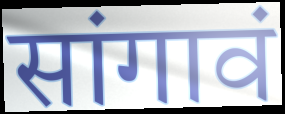
सांगावं